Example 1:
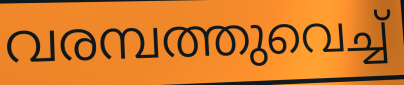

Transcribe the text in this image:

വരമ്പത്തുവെച്ച്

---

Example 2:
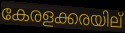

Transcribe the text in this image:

കേരളക്കരയില്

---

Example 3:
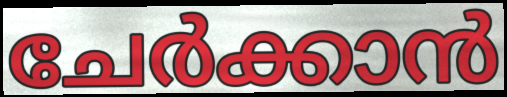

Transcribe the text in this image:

ചേർക്കാൻ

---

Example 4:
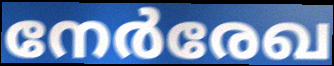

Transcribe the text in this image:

നേർരേഖ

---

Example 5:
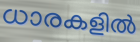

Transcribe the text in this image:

ധാരകളിൽ